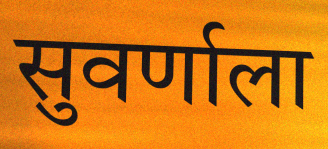
सुवर्णाला